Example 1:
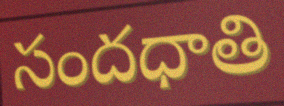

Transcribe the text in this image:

సందధాతి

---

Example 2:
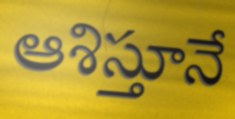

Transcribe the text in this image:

ఆశిస్తూనే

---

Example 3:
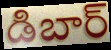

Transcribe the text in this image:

డిబార్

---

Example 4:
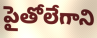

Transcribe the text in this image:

పైతోలేగాని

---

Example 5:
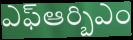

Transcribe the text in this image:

ఎఫ్ఆర్బిఎం